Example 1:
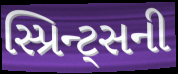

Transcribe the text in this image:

સ્પ્રિન્ટ્સની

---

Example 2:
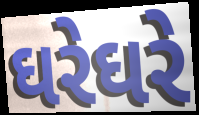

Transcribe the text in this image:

ઘરેઘરે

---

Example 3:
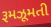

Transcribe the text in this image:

રૂમઝૂમતી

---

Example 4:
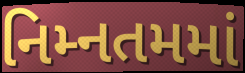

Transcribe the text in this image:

નિમ્નતમમાં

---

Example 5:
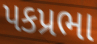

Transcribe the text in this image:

પકપ્રભા